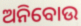
ଅନିବୋଉ